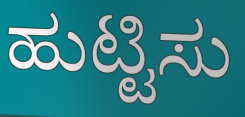
ಹುಟ್ಟಿಸು